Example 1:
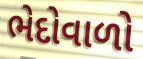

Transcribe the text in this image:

ભેદોવાળો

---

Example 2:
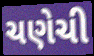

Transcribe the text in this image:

ચણેચી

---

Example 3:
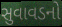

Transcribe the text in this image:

સુવાવડનો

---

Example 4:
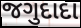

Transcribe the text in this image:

જગુદાદા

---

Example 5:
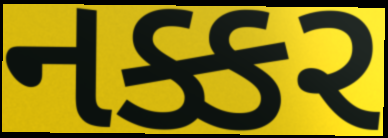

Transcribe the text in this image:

નક્કર